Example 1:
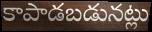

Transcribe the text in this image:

కాపాడబడునట్లు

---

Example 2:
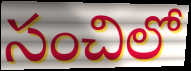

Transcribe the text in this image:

సంచిలో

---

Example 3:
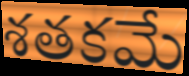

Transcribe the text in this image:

శతకమే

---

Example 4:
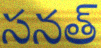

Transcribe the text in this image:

సనత్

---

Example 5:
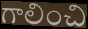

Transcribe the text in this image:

గాలించి